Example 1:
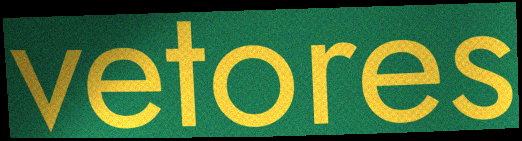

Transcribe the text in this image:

vetores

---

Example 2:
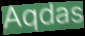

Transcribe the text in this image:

Aqdas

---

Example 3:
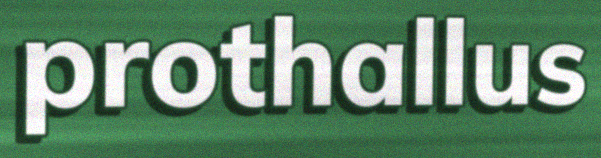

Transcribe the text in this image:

prothallus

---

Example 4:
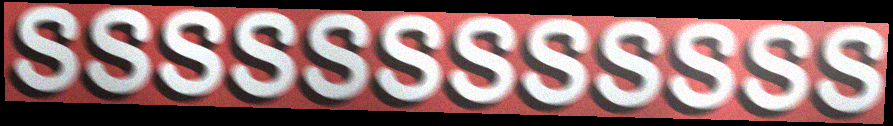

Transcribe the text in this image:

ssssssssssss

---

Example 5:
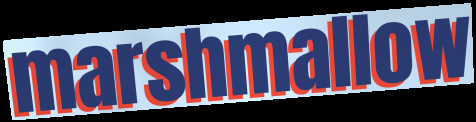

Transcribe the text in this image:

marshmallow